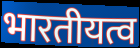
भारतीयत्व